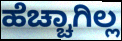
ಹೆಚ್ಚಾಗಿಲ್ಲ